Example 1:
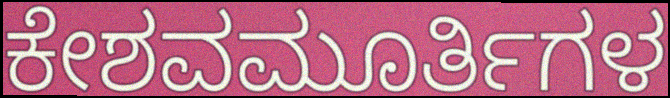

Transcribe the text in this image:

ಕೇಶವಮೂರ್ತಿಗಳ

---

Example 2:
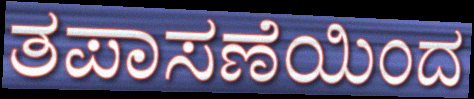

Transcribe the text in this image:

ತಪಾಸಣೆಯಿಂದ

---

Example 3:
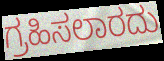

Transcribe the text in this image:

ಗ್ರಹಿಸಲಾರದು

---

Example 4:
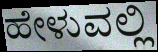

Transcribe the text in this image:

ಹೇಳುವಲ್ಲಿ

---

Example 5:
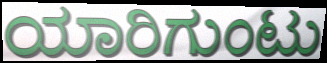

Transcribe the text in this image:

ಯಾರಿಗುಂಟು